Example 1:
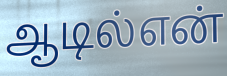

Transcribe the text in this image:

ஆடில்என்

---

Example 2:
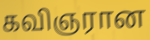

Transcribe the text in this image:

கவிஞரான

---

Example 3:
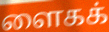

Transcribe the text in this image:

ளைகக்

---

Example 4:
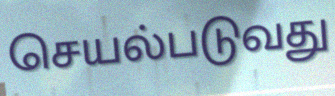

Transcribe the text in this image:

செயல்படுவது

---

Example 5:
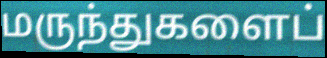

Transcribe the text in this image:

மருந்துகளைப்